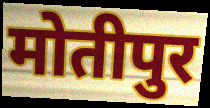
मोतीपुर